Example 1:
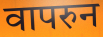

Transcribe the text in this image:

वापरुन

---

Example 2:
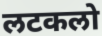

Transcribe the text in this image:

लटकलो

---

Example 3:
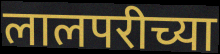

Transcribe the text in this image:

लालपरीच्या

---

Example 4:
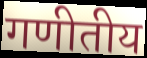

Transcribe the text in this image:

गणीतीय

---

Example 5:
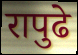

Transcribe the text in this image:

रापुढे